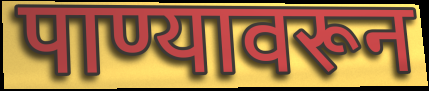
पाण्यावरून